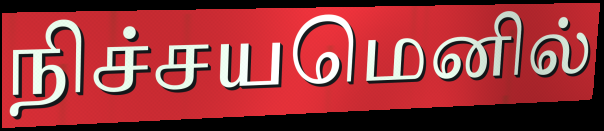
நிச்சயமெனில்